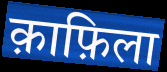
क़ाफ़िला